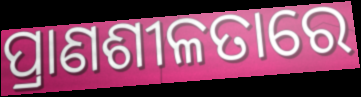
ପ୍ରାଣଶୀଳତାରେ